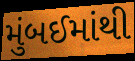
મુંબઈમાંથી